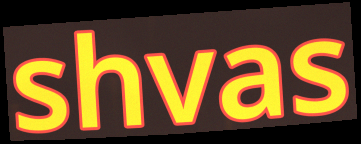
shvas